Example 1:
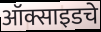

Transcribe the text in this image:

ऑक्साइडचे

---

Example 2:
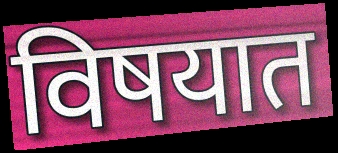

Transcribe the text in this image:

विषयात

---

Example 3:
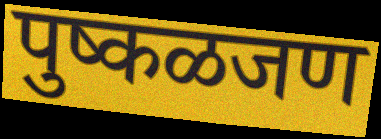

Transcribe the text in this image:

पुष्कळजण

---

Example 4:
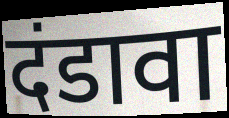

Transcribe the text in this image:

दंडावा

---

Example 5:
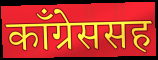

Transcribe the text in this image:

काँग्रेससह